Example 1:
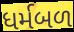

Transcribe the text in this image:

ધર્મબળ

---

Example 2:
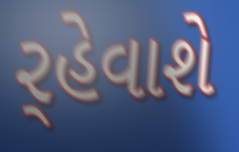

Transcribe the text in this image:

ર્‌હેવાશે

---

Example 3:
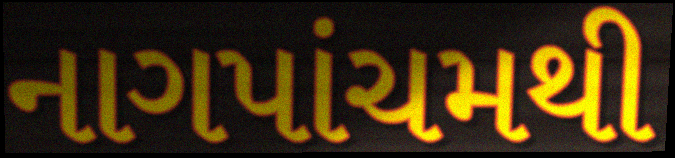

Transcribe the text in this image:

નાગપાંચમથી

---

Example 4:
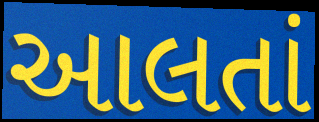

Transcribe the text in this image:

આલતાં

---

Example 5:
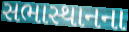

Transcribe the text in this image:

સભાસ્થાનના